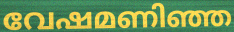
വേഷമണിഞ്ഞ